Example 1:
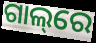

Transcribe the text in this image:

ଗାଲ୍‌ରେ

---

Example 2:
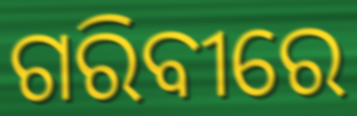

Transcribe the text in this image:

ଗରିବୀରେ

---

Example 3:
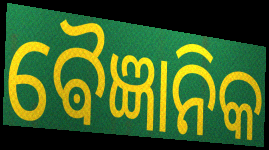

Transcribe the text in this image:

ଵୈଜ୍ଞାନିକ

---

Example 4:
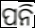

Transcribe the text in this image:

ପନି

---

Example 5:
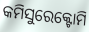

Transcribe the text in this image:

କମିସୁରେକ୍ଟୋମି